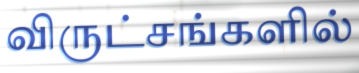
விருட்சங்களில்